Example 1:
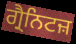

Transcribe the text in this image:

ਗ੍ਰੈਨਿਟਜ਼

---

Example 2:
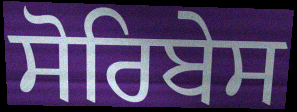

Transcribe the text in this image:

ਸੋਰਿਬੇਸ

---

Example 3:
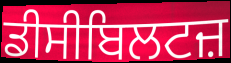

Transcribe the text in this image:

ਡੀਸੀਬਿਲਟਜ਼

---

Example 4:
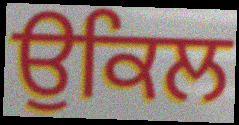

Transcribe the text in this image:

ਉਕਿਲ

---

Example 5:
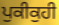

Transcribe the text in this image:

ਪੁਕੀਕੁਹੀ